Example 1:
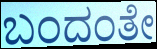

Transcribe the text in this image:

ಬಂದಂತೇ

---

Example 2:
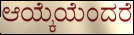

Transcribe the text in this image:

ಆಯ್ಕೆಯೆಂದರೆ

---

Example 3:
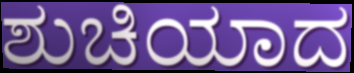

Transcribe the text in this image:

ಶುಚಿಯಾದ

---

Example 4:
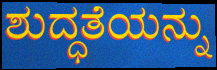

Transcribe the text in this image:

ಶುದ್ಧತೆಯನ್ನು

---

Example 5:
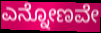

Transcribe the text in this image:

ಎನ್ನೋಣವೇ